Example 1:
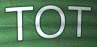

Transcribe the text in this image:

TOT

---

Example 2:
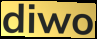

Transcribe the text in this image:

diwo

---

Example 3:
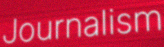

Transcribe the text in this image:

Journalism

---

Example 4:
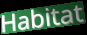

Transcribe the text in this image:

Habitat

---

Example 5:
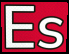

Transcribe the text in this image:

Es